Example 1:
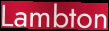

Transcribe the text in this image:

Lambton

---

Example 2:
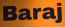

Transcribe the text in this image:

Baraj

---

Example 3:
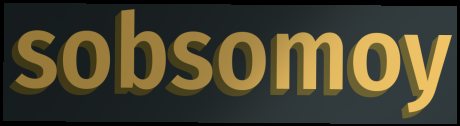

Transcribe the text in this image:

sobsomoy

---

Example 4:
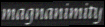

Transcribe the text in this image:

magnanimity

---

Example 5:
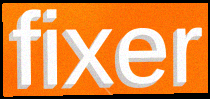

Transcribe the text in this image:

fixer